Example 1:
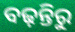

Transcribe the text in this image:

ବଢ଼ନ୍ତିରୁ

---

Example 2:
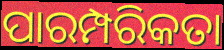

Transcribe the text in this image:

ପାରମ୍ପରିକତା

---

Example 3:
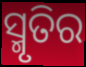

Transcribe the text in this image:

ସ୍ମୃତିର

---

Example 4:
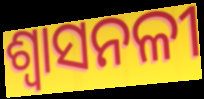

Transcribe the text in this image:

ଶ୍ଵାସନଳୀ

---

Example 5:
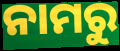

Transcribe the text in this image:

ନାମରୁ